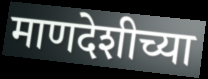
माणदेशीच्या